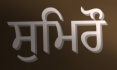
ਸੁਮਿਰੌ